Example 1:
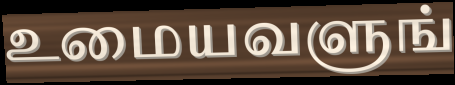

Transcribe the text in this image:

உமையவளுங்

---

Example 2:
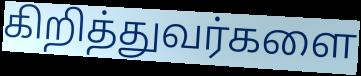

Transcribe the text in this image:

கிறித்துவர்களை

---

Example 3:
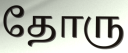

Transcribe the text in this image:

தோரு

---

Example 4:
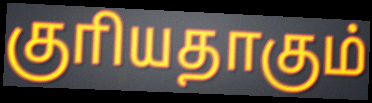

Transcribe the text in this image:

குரியதாகும்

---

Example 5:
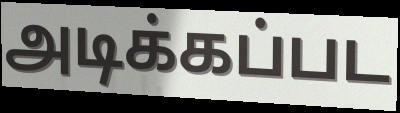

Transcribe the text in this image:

அடிக்கப்பட